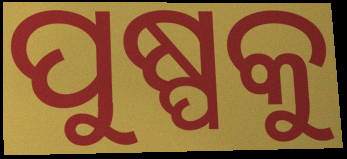
ପୁଷ୍ପକୁ